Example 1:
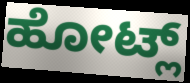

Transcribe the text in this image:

ಹೋಟ್ಲ್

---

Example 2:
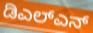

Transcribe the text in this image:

ಡಿಎಲ್ಎನ್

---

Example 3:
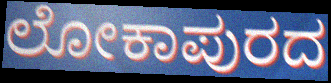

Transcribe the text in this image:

ಲೋಕಾಪುರದ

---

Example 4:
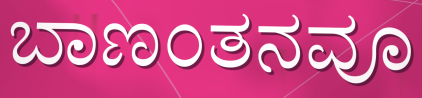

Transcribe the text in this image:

ಬಾಣಂತನವೂ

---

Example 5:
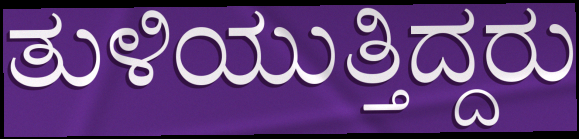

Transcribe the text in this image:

ತುಳಿಯುತ್ತಿದ್ದರು